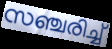
സഞ്ചരിച്ച്